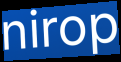
nirop